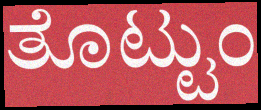
ತೊಟ್ಟುಂ